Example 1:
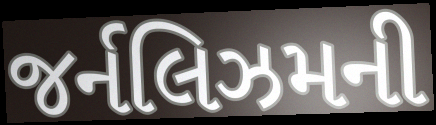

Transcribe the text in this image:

જર્નલિઝમની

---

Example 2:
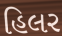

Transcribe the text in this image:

હિલર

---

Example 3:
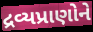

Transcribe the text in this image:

દ્રવ્યપ્રાણોને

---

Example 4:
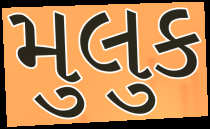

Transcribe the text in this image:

મુલુક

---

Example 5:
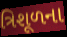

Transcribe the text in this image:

ત્રિશૂળના